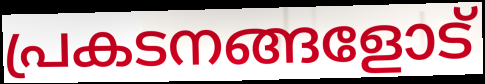
പ്രകടനങ്ങളോട്